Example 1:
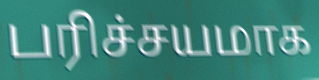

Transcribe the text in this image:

பரிச்சயமாக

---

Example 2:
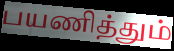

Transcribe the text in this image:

பயணித்தும்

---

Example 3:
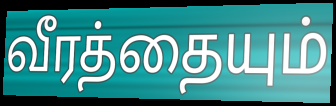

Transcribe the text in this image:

வீரத்தையும்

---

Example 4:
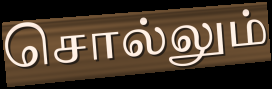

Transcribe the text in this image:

சொல்லும்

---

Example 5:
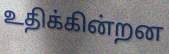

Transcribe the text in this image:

உதிக்கின்றன